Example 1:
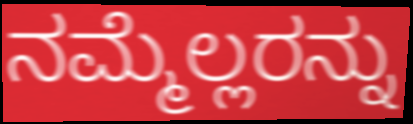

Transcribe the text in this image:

ನಮ್ಮೆಲ್ಲರನ್ನು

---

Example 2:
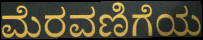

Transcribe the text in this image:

ಮೆರವಣಿಗೆಯ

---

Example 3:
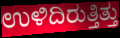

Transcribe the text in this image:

ಉಳಿದಿರುತ್ತಿತ್ತು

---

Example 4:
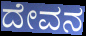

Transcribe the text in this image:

ದೇವನ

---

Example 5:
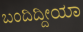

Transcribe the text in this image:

ಬಂದಿದ್ದೀಯಾ